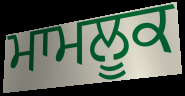
ਮਾਮਲੂਕ